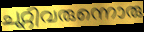
ചുറ്റിവരുന്നൊരു